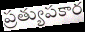
ప్రత్యుపకార